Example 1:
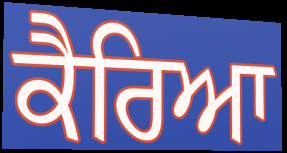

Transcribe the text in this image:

ਕੈਰਿਆ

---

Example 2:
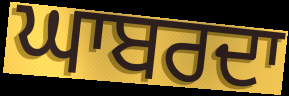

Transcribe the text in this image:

ਘਾਬਰਦਾ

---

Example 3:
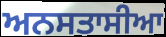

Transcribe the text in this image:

ਅਨਸਤਾਸੀਆ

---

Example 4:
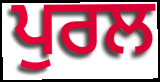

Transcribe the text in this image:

ਪੁਰਲ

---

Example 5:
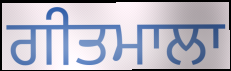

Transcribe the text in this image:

ਗੀਤਮਾਲਾ